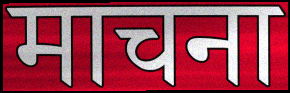
माचना